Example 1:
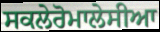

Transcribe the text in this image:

ਸਕਲੇਰੋਮਾਲੇਸੀਆ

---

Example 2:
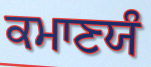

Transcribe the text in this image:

ਕਮਾਣਯੰ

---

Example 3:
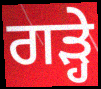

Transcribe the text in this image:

ਗੜ੍ਹੇ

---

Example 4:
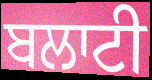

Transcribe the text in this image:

ਬਲਾਟੀ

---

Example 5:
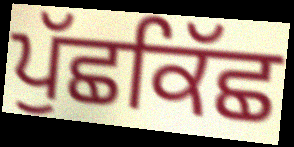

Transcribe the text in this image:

ਪੁੱਛਕਿੱਛ